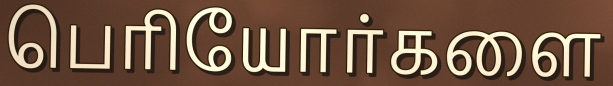
பெரியோர்களை